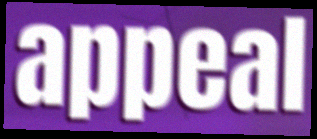
appeal